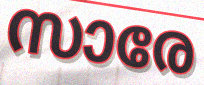
സാരേ